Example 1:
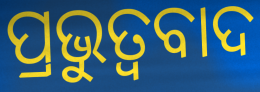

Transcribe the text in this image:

ପ୍ରଭୁତ୍ବବାଦ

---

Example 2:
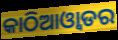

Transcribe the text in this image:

କାଠିଆଓ୍ୱାଡର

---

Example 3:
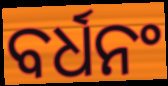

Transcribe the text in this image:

ବର୍ଧନଂ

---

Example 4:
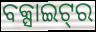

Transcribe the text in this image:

ବକ୍ସାଇଟ୍‌ର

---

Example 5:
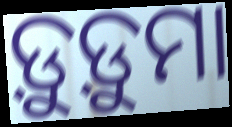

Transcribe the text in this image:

ଡ଼ୁଡ଼ୁମା